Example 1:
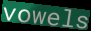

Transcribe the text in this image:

vowels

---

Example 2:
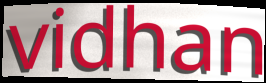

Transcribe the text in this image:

vidhan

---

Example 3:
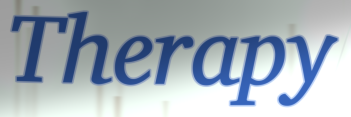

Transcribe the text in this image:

Therapy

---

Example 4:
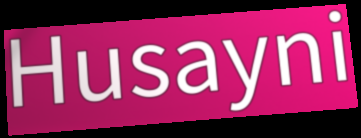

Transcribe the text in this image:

Husayni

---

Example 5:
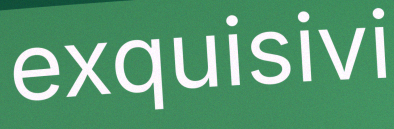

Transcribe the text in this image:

exquisivi